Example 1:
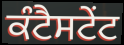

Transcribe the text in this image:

ਕੰਟੈਸਟੇਂਟ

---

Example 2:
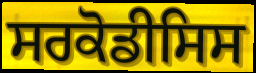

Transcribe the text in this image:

ਸਰਕੋਡੀਸਿਸ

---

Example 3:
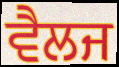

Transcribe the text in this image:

ਵੈਲਜ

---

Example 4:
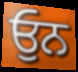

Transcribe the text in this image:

ਓੁਨ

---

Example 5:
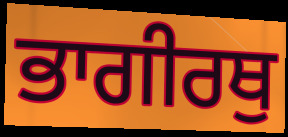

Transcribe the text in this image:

ਭਾਗੀਰਥੁ